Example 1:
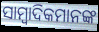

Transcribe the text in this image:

ସାମ୍ବାଦିକମାନଙ୍କ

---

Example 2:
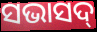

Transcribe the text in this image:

ସଭାସଦ୍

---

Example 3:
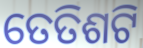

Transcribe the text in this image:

ତେତିଶଟି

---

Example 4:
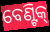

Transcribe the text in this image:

ବେଣ୍ଟିକ୍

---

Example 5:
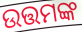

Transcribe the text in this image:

ଉତ୍ତମଙ୍କ